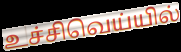
உச்சிவெய்யில்